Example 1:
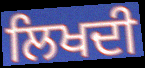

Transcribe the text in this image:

ਲਿਖਦੀ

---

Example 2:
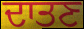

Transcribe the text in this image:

ਦਾਤਣ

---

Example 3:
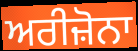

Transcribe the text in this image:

ਅਰੀਜ਼ੋਨਾ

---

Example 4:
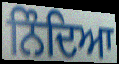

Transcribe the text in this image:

ਨਿੰਦਿਆ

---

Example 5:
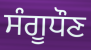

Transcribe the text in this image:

ਸੰਗੂਧੌਣ